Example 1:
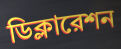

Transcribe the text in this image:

ডিক্লারেশন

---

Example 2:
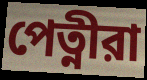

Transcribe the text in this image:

পেত্নীরা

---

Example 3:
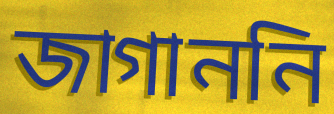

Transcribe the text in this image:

জাগাননি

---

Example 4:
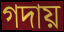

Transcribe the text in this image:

গদায়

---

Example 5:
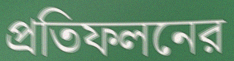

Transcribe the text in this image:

প্রতিফলনের